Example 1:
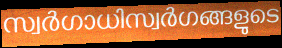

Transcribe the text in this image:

സ്വർഗാധിസ്വർഗങ്ങളുടെ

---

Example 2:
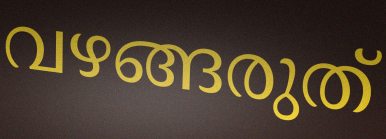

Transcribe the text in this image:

വഴങ്ങരുത്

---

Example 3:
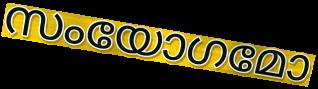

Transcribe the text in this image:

സംയോഗമോ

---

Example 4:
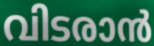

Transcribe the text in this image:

വിടരാൻ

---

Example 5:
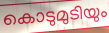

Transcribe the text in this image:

കൊടുമുടിയും